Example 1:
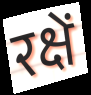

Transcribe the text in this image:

रक्षें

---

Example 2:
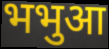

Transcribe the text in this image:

भभुआ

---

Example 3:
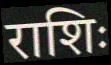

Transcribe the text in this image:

राशिः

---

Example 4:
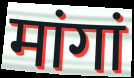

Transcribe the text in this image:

मांगां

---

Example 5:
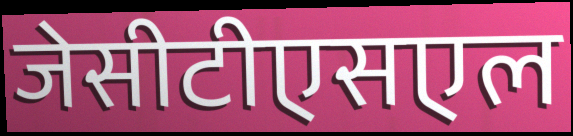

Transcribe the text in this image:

जेसीटीएसएल